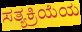
ಸತ್ಯಕ್ರಿಯೆಯ